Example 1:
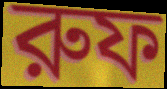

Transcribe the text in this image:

রুফ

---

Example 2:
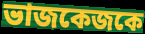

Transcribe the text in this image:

ভাজকেজকে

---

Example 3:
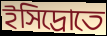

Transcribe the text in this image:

ইসিদ্রোতে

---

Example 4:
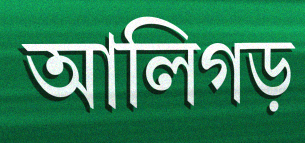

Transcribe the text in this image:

আলিগড়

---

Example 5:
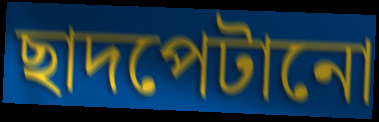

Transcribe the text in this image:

ছাদপেটানো